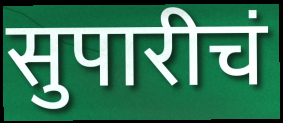
सुपारीचं